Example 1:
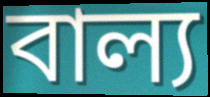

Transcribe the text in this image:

বাল্য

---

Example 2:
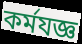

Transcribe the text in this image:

কর্মযজ্ঞ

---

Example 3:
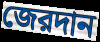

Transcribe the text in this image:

জেরদান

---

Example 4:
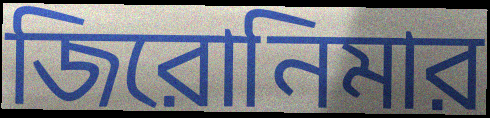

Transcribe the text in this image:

জিরোনিমার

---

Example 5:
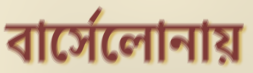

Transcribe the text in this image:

বার্সেলোনায়